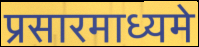
प्रसारमाध्यमे